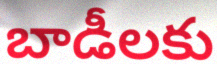
బాడీలకు